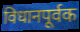
विधानपूर्वक